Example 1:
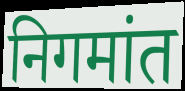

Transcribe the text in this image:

निगमांत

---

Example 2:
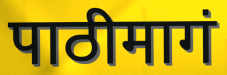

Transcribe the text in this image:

पाठीमागं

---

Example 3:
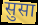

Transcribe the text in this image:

सुसा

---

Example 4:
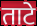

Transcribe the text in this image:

ताटे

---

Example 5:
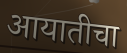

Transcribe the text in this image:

आयातीचा